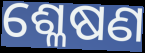
ଶ୍ଳେଷଣ